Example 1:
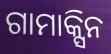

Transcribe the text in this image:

ଗାମାକ୍ସିନ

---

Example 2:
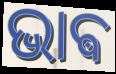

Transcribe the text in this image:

ଭାଵ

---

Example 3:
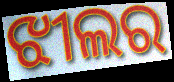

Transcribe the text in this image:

ଝୀଲର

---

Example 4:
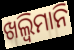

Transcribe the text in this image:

ଖଲ୍ୱିମାନି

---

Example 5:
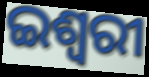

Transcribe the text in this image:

ଇଶ୍ୱରୀ